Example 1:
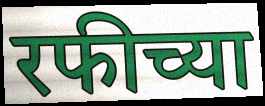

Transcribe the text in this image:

रफीच्या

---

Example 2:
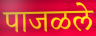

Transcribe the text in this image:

पाजळले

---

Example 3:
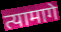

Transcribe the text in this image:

त्यामागे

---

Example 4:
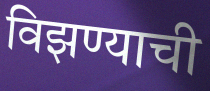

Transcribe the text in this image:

विझण्याची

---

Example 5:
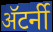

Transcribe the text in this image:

ॲटर्नी